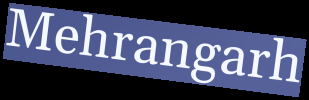
Mehrangarh